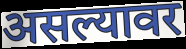
असल्यावर